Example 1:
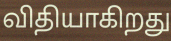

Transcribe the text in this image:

விதியாகிறது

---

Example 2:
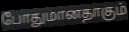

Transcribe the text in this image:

போதுமானதாகும்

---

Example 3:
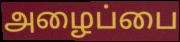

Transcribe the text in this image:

அழைப்பை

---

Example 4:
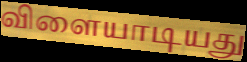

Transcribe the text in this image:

விளையாடியது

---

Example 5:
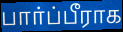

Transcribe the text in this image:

பார்ப்பீராக